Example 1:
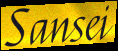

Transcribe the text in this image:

Sansei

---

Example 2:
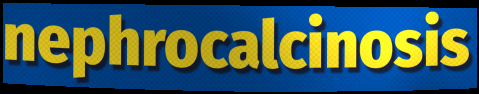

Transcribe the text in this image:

nephrocalcinosis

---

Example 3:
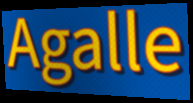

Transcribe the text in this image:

Agalle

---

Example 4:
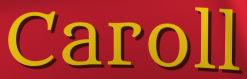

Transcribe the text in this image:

Caroll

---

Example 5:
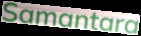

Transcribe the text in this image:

Samantara